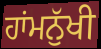
ਹਾਂਮਨੁੱਖੀ